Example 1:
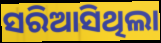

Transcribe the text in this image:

ସରିଆସିଥିଲା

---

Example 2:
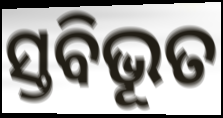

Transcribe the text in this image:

ସ୍ତବିଭୂତ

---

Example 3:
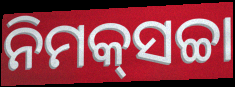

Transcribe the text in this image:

ନିମକ୍‍ସଚ୍ଚା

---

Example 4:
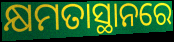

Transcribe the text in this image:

କ୍ଷମତାସ୍ଥାନରେ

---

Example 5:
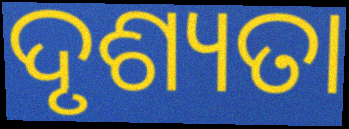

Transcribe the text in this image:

ଦୃଶ୍ୟତା